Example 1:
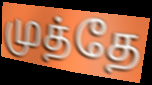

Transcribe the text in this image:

முத்தே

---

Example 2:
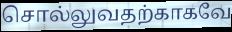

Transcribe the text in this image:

சொல்லுவதற்காகவே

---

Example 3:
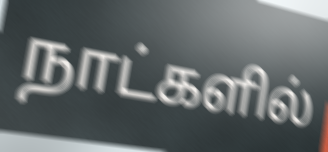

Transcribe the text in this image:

நாட்களில்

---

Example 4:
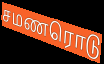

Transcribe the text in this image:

சமணரொடு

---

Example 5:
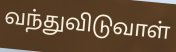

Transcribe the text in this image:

வந்துவிடுவாள்